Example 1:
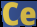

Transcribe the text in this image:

Ce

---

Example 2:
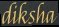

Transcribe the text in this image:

diksha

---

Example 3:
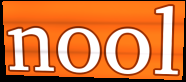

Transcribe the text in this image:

nool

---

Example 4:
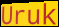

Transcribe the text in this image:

Uruk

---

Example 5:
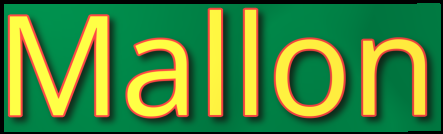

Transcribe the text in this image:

Mallon